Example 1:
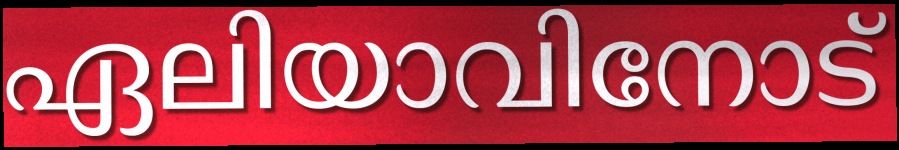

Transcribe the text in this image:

ഏലിയാവിനോട്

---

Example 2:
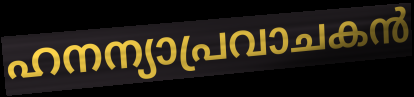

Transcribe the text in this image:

ഹനന്യാപ്രവാചകൻ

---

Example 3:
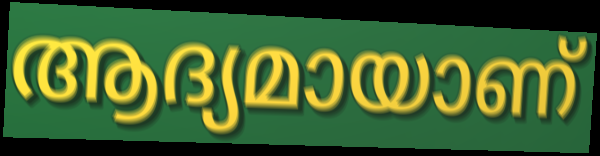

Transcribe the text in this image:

ആദ്യമായാണ്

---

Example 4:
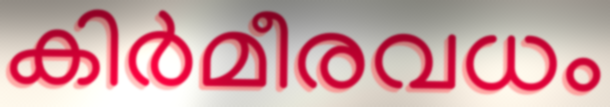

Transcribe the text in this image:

കിർമീരവധം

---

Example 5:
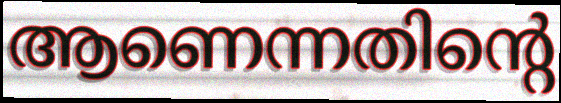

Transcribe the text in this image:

ആണെന്നതിന്റെ